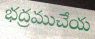
భద్రముచేయ